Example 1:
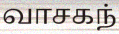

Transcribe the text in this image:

வாசகந்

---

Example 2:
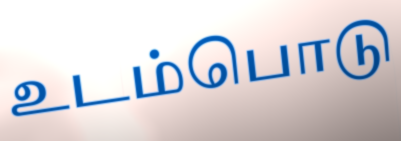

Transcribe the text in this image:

உடம்பொடு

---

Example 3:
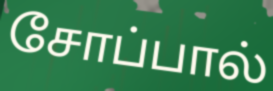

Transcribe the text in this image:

சோப்பால்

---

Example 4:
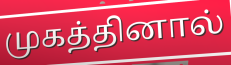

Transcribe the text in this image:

முகத்தினால்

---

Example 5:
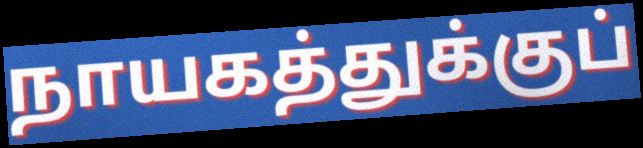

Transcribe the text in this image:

நாயகத்துக்குப்